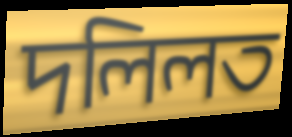
দলিলত